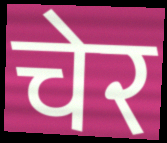
चेर